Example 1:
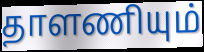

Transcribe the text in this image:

தாளணியும்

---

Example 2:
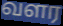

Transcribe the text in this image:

வளர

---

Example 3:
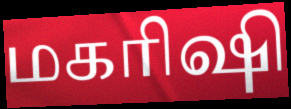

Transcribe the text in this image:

மகரிஷி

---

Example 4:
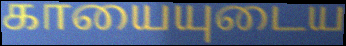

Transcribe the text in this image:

காயையுடைய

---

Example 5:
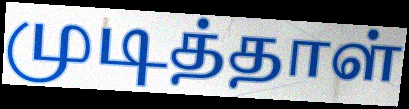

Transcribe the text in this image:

முடித்தாள்